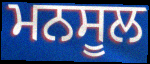
ਮਨਸੂਲ